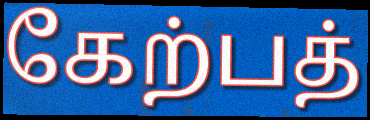
கேற்பத்